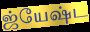
ஜ்யேஷ்ட